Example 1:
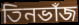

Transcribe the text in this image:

তিনভাঁজ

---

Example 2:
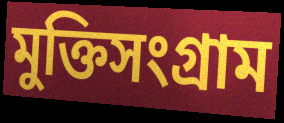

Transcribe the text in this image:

মুক্তিসংগ্রাম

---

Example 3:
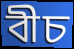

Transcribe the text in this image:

বীচ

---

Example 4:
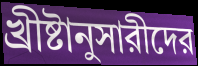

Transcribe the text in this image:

খ্রীষ্টানুসারীদের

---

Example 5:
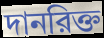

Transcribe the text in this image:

দানরিক্ত